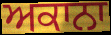
ਅਕਾਨਾ